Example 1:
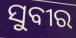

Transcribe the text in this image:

ସୁବୀର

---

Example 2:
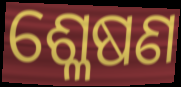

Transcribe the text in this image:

ଶ୍ଳେଷଣ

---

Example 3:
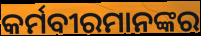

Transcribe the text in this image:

କର୍ମବୀରମାନଙ୍କର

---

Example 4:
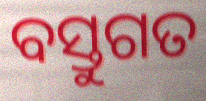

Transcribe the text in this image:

ବସ୍ତୁଗତ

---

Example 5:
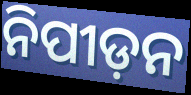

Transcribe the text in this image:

ନିପୀଡ଼ନ